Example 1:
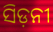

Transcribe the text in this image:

ସିଡ଼ନୀ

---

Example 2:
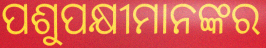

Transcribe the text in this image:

ପଶୁପକ୍ଷୀମାନଙ୍କର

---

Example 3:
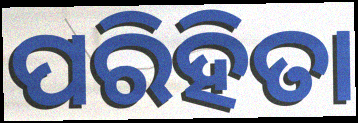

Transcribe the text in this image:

ପରିହିତା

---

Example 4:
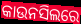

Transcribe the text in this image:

କାଉନସିଲରେ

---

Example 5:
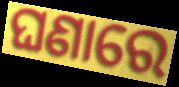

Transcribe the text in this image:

ଘଣାରେ